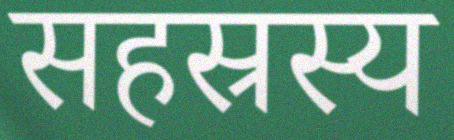
सहस्रस्य